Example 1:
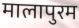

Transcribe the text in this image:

मालापुरम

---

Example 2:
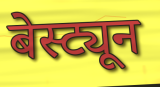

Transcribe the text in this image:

बेस्ट्यून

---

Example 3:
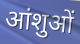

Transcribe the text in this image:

आंशुओं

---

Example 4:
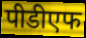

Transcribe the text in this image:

पीडीएफ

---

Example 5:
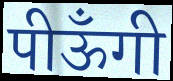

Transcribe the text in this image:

पीऊँगी